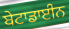
ਬੇਟਾਡਾਈਨ